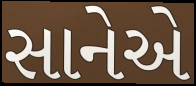
સાનેએ